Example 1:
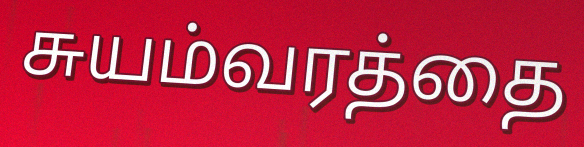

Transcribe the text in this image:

சுயம்வரத்தை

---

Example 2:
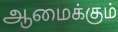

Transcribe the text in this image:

ஆமைக்கும்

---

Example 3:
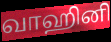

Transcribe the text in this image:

வாஹினி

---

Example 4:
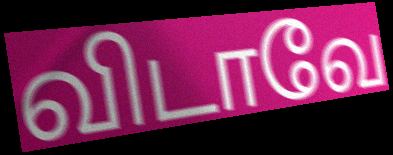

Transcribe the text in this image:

விடாவே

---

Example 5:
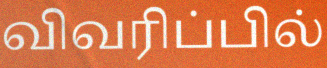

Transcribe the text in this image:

விவரிப்பில்